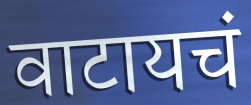
वाटायचं